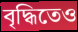
বৃদ্ধিতেও